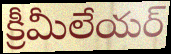
క్రీమీలేయర్